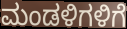
ಮಂಡಳಿಗಳಿಗೆ